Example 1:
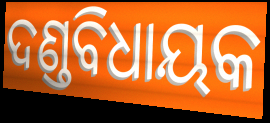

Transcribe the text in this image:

ଦଣ୍ଡବିଧାୟକ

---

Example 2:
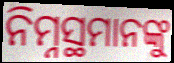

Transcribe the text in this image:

ନିମ୍ନସ୍ଥମାନଙ୍କୁ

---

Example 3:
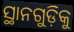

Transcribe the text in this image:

ସ୍ଥାନଗୁଡ଼ିକୁ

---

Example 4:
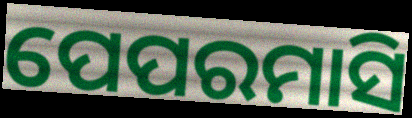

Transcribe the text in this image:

ପେପରମାସି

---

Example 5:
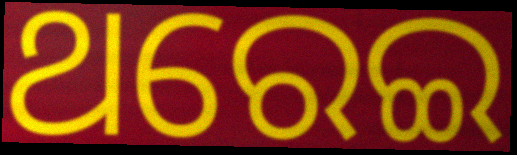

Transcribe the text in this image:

ଥରେଇ